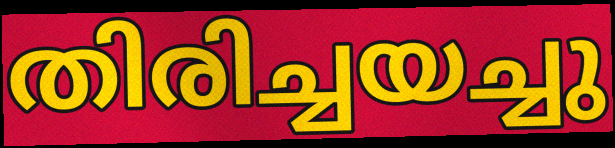
തിരിച്ചയച്ചു